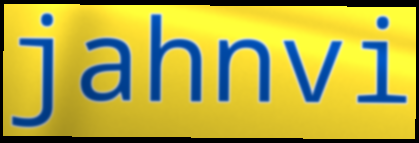
jahnvi